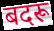
बदरू